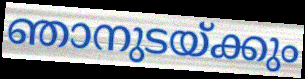
ഞാനുടയ്ക്കും